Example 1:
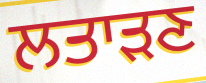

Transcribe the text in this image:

ਲਤਾੜਣ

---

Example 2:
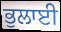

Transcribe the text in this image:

ਭੁਲਾਈ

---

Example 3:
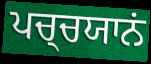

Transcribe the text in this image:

ਪਚ੍ਚਯਾਨਂ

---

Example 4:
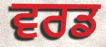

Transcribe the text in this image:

ਵਰਡ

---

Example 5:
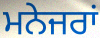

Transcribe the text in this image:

ਮਨੇਜਰਾਂ